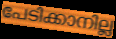
പേടിക്കാനില്ല